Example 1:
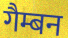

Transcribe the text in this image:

गैम्बन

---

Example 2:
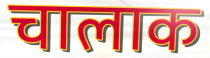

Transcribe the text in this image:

चालाक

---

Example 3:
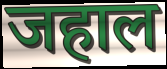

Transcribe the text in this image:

जहाल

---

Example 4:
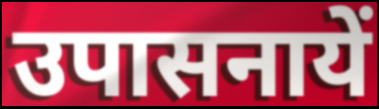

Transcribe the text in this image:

उपासनायें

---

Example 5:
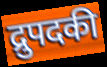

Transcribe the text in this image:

द्रुपदकी